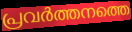
പ്രവർത്തനത്തെ